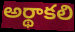
అర్థాకలి